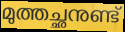
മുത്തച്ഛനുണ്ട്